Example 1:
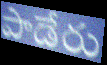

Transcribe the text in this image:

పాడేరు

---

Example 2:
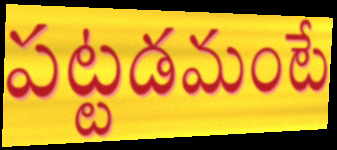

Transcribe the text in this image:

పట్టడమంటే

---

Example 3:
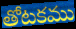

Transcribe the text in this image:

తోటకము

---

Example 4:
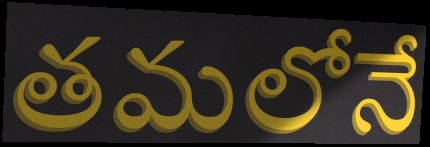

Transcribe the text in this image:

తమలోనే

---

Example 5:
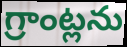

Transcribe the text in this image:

గ్రాంట్లను